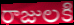
రాజులకి